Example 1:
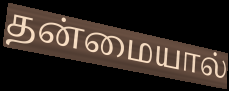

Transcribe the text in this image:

தன்மையால்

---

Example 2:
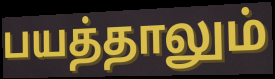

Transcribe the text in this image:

பயத்தாலும்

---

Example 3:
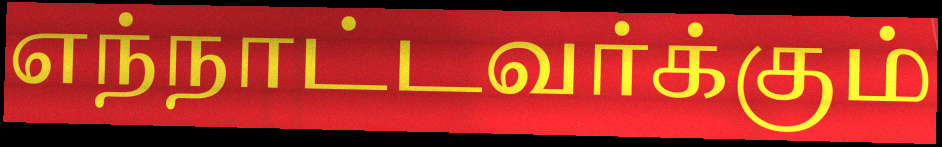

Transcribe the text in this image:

எந்நாட்டவர்க்கும்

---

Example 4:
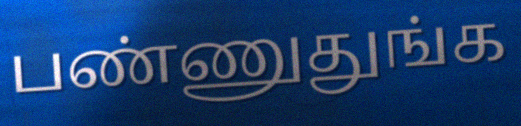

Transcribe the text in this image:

பண்ணுதுங்க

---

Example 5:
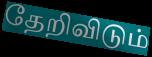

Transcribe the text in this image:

தேறிவிடும்